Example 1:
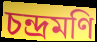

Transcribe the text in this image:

চন্দ্রমণি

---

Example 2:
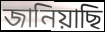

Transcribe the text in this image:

জানিয়াছি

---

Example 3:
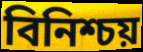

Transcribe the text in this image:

বিনিশ্চয়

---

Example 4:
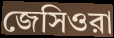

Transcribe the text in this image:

জেসিওরা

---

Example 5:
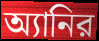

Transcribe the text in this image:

অ্যানির